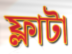
ফ্লাটা